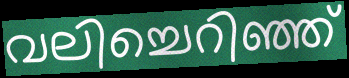
വലിച്ചെറിഞ്ഞ്